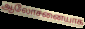
ஆலோசனையாக